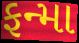
ફન્મા